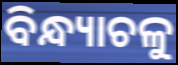
ବିନ୍ଧ୍ୟାଚଳୁ